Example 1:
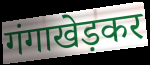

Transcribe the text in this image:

गंगाखेड़कर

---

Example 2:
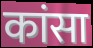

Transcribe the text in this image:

कांसा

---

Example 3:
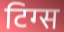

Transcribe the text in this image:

टिग्स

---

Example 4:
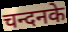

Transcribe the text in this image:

चन्दनके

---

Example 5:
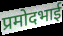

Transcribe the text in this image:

प्रमोदभाई